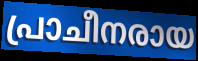
പ്രാചീനരായ